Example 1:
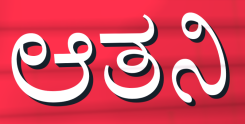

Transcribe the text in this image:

ಆತನಿ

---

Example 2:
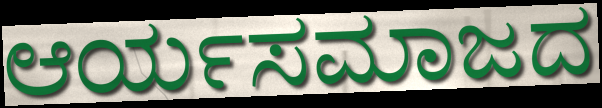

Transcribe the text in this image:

ಆರ್ಯಸಮಾಜದ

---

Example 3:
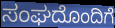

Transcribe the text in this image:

ಸಂಘದೊಂದಿಗೆ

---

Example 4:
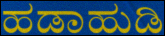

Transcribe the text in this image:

ಹಡಾಹುಡಿ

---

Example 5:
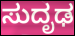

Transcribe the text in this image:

ಸುದೃಢ